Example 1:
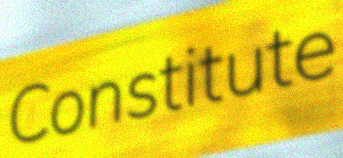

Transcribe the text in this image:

Constitute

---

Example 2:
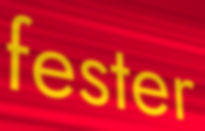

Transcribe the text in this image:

fester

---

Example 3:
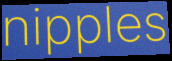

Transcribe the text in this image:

nipples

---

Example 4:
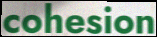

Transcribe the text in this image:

cohesion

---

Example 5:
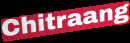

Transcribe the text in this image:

Chitraang